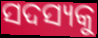
ସଦସ୍ୟକୁ